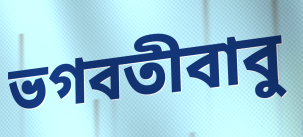
ভগবতীবাবু